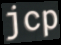
jcp